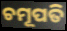
ଚମୂପତି